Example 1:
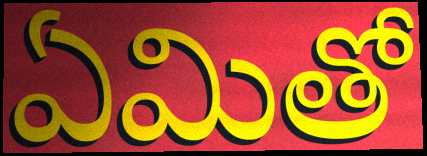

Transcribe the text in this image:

ఏమితో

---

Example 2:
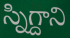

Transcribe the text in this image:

స్నిగ్దాని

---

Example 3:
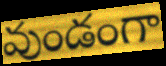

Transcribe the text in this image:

వుండంగా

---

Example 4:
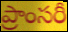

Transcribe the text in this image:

ప్రాంసరీ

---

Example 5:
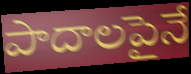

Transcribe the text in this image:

పాదాలపైనే